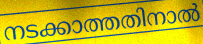
നടക്കാത്തതിനാൽ